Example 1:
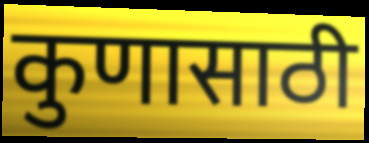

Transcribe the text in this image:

कुणासाठी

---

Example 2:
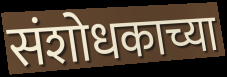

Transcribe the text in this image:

संशोधकाच्या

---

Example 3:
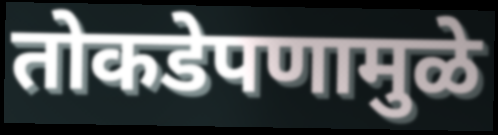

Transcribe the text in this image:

तोकडेपणामुळे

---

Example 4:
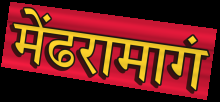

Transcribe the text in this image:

मेंढरामागं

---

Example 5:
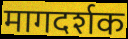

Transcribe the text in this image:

मागदर्शक